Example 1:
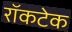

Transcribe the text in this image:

रॉकटेक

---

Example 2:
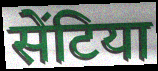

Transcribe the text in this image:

सेंटिया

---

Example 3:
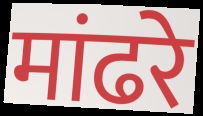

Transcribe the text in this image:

मांढरे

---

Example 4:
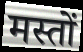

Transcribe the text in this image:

मस्तों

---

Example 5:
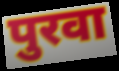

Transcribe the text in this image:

पुरवा